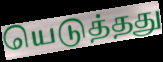
யெடுத்தது